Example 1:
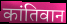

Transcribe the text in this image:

कांतिवान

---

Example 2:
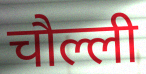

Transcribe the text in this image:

चौल्ली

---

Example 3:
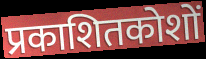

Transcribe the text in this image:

प्रकाशितकोशों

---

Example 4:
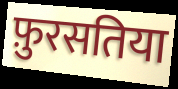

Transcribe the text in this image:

फ़ुरसतिया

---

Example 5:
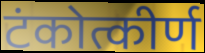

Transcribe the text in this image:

टंकोत्कीर्ण